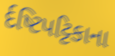
ર્દષ્ટિપટ્ટિકાના